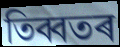
তিব্বতৰ